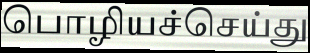
பொழியச்செய்து